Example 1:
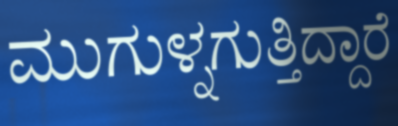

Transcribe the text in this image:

ಮುಗುಳ್ನಗುತ್ತಿದ್ದಾರೆ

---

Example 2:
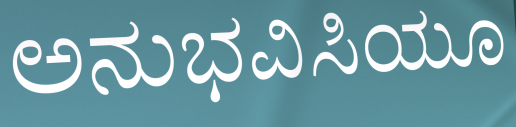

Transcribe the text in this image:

ಅನುಭವಿಸಿಯೂ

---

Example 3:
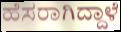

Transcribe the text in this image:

ಹೆಸರಾಗಿದ್ದಾಳೆ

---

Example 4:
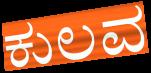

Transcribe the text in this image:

ಕುಲವ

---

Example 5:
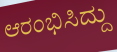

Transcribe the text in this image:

ಆರಂಭಿಸಿದ್ದು